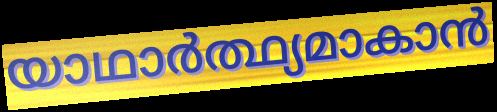
യാഥാർത്ഥ്യമാകാൻ